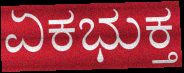
ಏಕಭುಕ್ತ